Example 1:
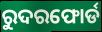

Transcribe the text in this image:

ରୁଦରଫୋର୍ଡ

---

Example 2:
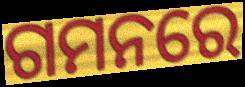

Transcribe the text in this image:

ଗମନରେ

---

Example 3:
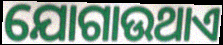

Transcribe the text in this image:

ଯୋଗାଉଥାଏ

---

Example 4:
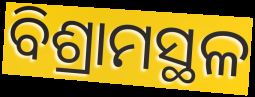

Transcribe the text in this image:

ବିଶ୍ରାମସ୍ଥଳ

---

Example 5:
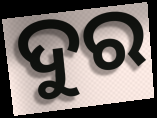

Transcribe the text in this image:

ଦୁର